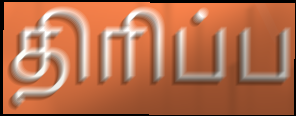
திரிப்ப